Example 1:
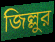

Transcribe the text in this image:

জিল্লুর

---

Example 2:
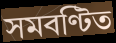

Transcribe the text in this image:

সমবণ্টিত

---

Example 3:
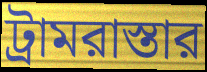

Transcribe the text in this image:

ট্রামরাস্তার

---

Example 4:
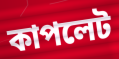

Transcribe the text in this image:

কাপলেট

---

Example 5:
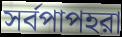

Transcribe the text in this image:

সর্বপাপহরা